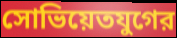
সোভিয়েতযুগের